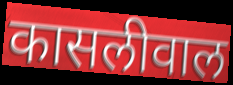
कासलीवाल